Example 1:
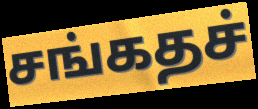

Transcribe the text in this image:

சங்கதச்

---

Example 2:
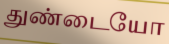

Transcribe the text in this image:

துண்டையோ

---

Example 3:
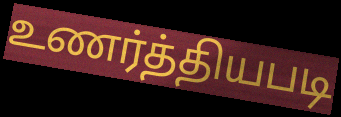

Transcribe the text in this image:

உணர்த்தியபடி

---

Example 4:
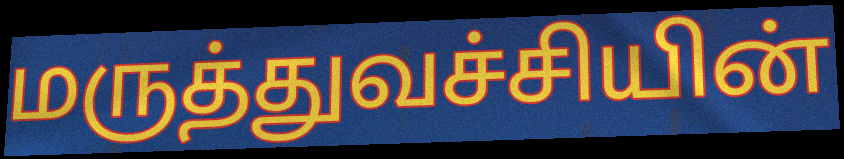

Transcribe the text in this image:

மருத்துவச்சியின்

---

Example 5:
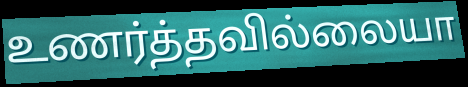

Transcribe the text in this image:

உணர்த்தவில்லையா